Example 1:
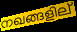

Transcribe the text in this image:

നഖങ്ങളില്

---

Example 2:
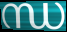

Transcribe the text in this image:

ന്ധ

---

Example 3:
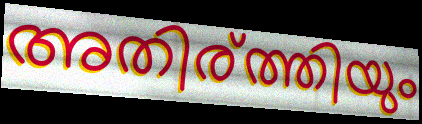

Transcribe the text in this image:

അതിര്ത്തിയും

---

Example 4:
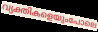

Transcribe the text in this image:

വ്യക്തികളെയുംപോലെ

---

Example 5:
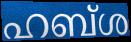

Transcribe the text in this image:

ഹബ്ശ